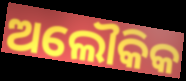
ଅଲୌକିକ